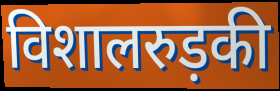
विशालरुड़की